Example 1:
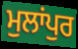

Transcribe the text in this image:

ਮੁਲਾਂਪੁਰ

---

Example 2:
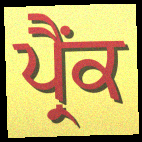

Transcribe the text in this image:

ਪ੍ਰੈਂਕ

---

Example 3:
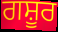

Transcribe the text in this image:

ਗਸ਼ੂਰ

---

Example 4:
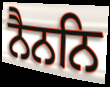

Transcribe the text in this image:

ਨੈਨਨਿ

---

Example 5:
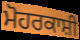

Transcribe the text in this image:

ਮੋਹਰਕਾਸ਼ੀ